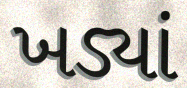
ખડ્યાં